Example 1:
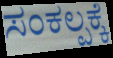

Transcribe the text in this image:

ಸಂಕಲ್ಪಕ್ಕೆ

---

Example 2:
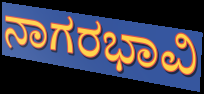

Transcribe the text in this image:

ನಾಗರಭಾವಿ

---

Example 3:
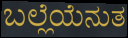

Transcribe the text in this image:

ಬಲ್ಲೆಯೆನುತ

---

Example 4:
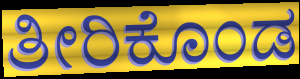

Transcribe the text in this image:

ತೀರಿಕೊಂಡ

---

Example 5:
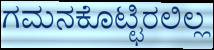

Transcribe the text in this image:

ಗಮನಕೊಟ್ಟಿರಲಿಲ್ಲ